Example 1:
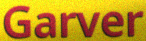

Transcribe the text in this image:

Garver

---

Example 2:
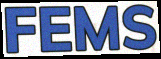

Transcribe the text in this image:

FEMS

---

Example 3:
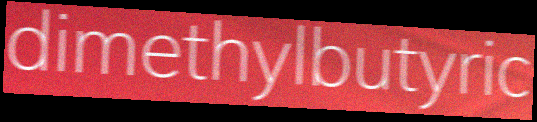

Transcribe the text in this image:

dimethylbutyric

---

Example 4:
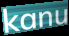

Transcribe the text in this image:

kanu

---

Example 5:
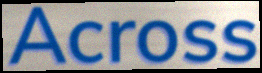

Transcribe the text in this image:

Across